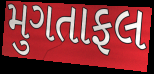
મુગતાફલ